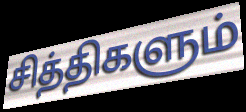
சித்திகளும்